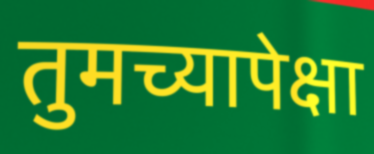
तुमच्यापेक्षा